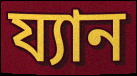
য্যান